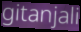
gitanjali